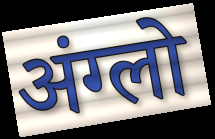
अंग्लो